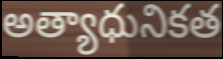
అత్యాధునికత